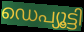
ഡെപ്യൂട്ടി